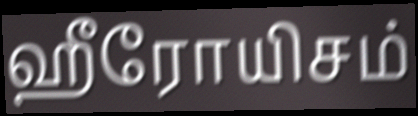
ஹீரோயிசம்